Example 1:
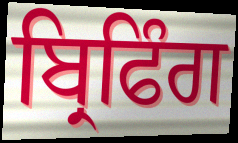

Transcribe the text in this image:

ਬ੍ਰਿਫਿੰਗ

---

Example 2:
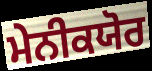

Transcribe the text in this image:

ਮੇਨੀਕਯੋਰ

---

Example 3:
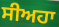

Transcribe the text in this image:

ਸੀਅਹਾ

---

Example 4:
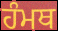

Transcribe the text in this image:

ਹੰਮਥ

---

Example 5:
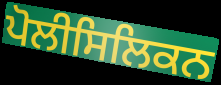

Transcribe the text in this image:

ਪੋਲੀਸਿਲਿਕਨ